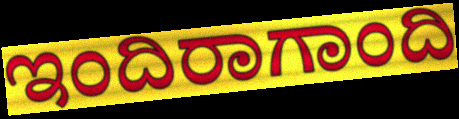
ಇಂದಿರಾಗಾಂದಿ